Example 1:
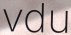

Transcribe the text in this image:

vdu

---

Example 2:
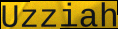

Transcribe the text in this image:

Uzziah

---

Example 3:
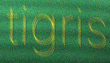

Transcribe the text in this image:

tigris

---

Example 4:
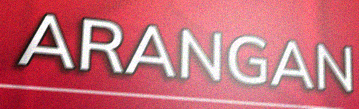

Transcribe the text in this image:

ARANGAN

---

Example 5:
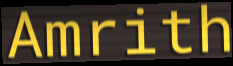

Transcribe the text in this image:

Amrith